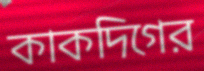
কাকদিগের